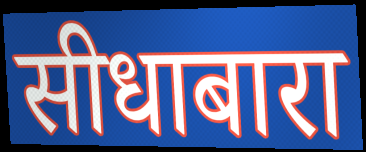
सीधाबारा